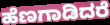
ಹೆಣಗಾಡಿದರೆ